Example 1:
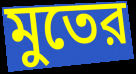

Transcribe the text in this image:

মুতের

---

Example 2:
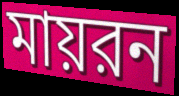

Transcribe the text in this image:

মায়রন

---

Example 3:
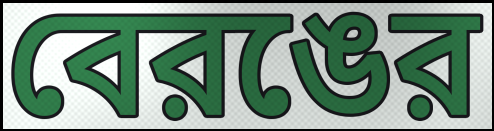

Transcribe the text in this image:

বেরঙের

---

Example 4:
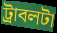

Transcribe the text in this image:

ট্রাবলটা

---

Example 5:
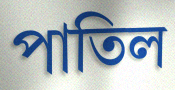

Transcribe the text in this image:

পাতিল